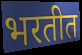
भरतीत